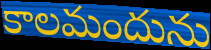
కాలమందును